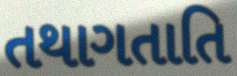
તથાગતાતિ